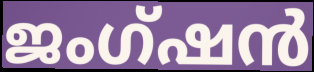
ജംഗ്ഷൻ